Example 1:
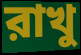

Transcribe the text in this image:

রাখু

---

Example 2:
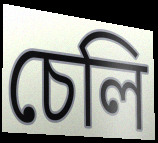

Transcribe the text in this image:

চেলি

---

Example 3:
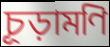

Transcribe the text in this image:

চূড়ামণি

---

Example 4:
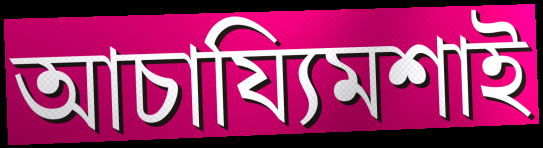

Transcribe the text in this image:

আচায্যিমশাই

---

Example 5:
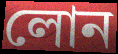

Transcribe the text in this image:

লোন